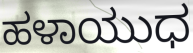
ಹಳಾಯುಧ